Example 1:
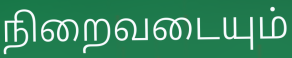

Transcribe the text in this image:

நிறைவடையும்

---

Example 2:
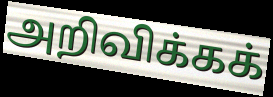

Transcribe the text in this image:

அறிவிக்கக்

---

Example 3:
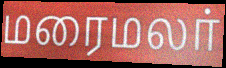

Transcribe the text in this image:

மரைமலர்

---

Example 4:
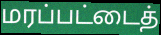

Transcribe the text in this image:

மரப்பட்டைத்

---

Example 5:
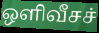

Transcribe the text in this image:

ஒளிவீசச்